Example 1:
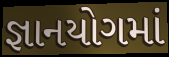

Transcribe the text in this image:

જ્ઞાનયોગમાં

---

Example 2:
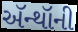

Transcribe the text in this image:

ઍન્થૉની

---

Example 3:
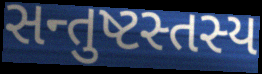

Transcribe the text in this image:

સન્તુષ્ટસ્તસ્ય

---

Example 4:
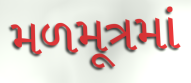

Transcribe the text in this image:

મળમૂત્રમાં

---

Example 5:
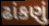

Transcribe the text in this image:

ઢાંકણું